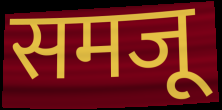
समजू